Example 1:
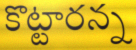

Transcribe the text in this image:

కొట్టారన్న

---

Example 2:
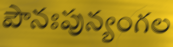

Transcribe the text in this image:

పౌనఃపున్యంగల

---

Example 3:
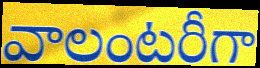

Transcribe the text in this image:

వాలంటరీగా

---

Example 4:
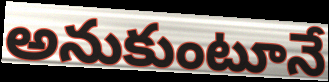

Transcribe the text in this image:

అనుకుంటూనే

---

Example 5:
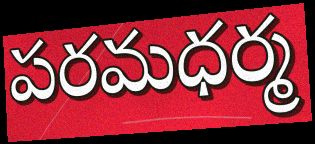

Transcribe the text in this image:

పరమధర్మ